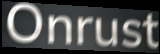
Onrust